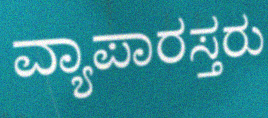
ವ್ಯಾಪಾರಸ್ತರು